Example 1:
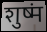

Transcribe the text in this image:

शुष्मं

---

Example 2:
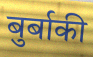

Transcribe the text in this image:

बुर्बाकी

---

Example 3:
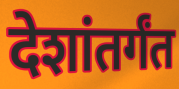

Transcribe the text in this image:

देशांतर्गंत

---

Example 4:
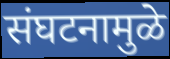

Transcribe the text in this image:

संघटनामुळे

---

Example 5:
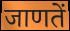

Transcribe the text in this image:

जाणतें